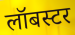
लॉबस्टर